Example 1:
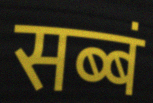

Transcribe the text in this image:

सब्बं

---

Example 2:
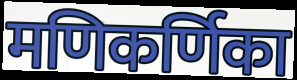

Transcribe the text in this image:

मणिकर्णिका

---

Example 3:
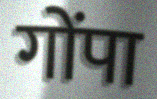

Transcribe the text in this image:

गोंपा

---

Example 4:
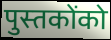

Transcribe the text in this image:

पुस्तकोंको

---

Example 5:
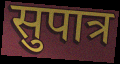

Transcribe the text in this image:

सुपात्र